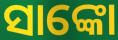
ସାଙ୍କୋ